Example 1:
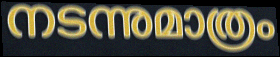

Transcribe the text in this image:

നടന്നുമാത്രം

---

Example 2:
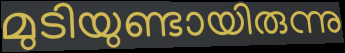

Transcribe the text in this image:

മുടിയുണ്ടായിരുന്നു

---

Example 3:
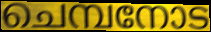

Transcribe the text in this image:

ചെമ്പനോട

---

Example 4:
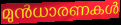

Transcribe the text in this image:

മുൻധാരണകൾ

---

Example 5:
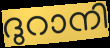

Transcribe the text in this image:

ദുറാനി